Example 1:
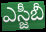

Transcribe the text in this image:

ఎస్జీబీ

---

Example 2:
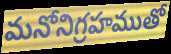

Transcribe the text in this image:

మనోనిగ్రహముతో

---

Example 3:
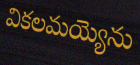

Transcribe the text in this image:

వికలమయ్యెను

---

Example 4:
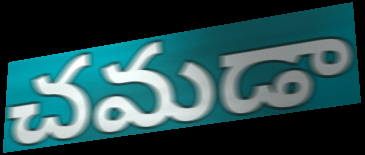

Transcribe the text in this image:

చమడా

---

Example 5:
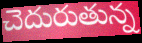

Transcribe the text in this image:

చెదురుతున్న